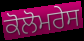
ਕੋਲੋਮਰੇਸ